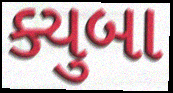
ક્યુબા